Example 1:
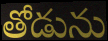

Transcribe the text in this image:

తోడును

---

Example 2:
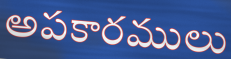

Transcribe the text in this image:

అపకారములు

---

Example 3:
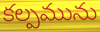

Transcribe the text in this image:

కల్పమును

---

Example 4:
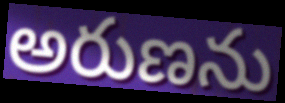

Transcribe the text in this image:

అరుణను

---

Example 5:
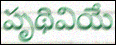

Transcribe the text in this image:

పృథివియే